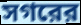
সগরের